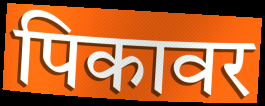
पिकावर